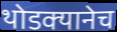
थोडक्यानेच